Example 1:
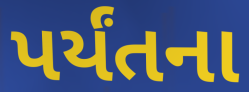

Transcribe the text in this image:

પર્યંતના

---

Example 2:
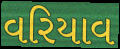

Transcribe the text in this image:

વરિયાવ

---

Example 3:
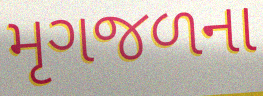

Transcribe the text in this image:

મૃગજળના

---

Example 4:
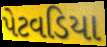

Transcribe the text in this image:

પેટવડિયા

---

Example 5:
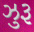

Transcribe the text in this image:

ઝુરૂ